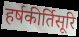
हर्षकीर्तिसूरि